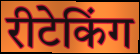
रीटेकिंग